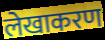
लेखाकरण